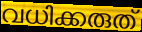
വധിക്കരുത്